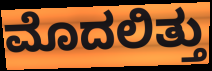
ಮೊದಲಿತ್ತು